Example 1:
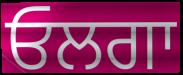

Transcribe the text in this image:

ਓਲਗਾ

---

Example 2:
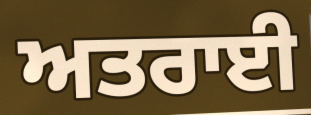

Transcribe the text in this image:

ਅਤਰਾਈ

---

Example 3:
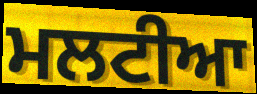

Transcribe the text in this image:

ਮਲਟੀਆ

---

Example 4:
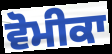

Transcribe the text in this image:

ਵੋਮੀਕਾ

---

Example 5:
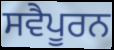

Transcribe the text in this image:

ਸਵੈਪੂਰਨ